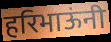
हरिभाऊंनी